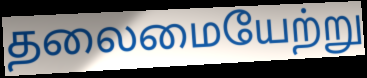
தலைமையேற்று